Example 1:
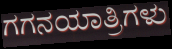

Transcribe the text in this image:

ಗಗನಯಾತ್ರಿಗಳು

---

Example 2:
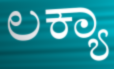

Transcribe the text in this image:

ಲಕ್ಯಾ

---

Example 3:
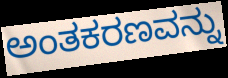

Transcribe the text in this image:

ಅಂತಕರಣವನ್ನು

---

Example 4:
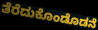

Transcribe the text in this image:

ತೆರೆದುಕೊಂಡೊಡನೆ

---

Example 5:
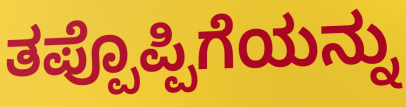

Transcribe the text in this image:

ತಪ್ಪೊಪ್ಪಿಗೆಯನ್ನು